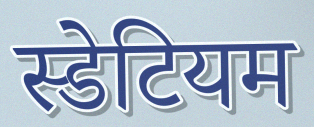
स्डेटियम